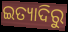
ଇତ୍ୟାଦିରୁ